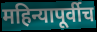
महिन्यापूर्वीच